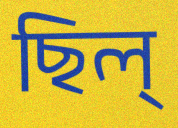
ছিল্